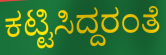
ಕಟ್ಟಿಸಿದ್ದರಂತೆ